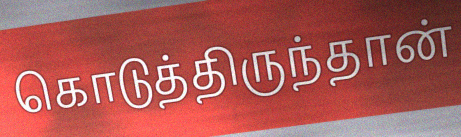
கொடுத்திருந்தான்